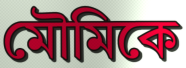
মৌমিকে